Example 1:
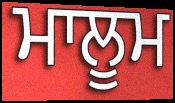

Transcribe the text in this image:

ਮਾਲੂਮ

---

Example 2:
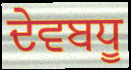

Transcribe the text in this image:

ਦੇਵਬਧੂ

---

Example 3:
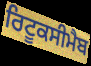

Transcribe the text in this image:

ਰਿਟੂਕਸੀਮੈਬ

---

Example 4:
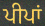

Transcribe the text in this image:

ਪੀਪਾਂ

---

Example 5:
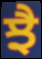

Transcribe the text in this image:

ਝੈ